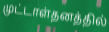
முட்டாள்தனத்தில்